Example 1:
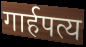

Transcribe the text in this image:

गार्हपत्य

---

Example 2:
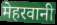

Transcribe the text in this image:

मेहरवानी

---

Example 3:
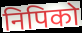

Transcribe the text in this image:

निपिको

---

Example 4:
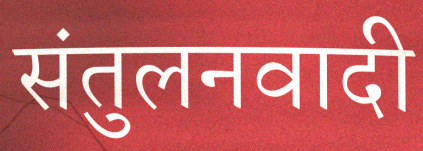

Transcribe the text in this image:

संतुलनवादी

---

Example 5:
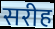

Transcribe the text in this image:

सरीह